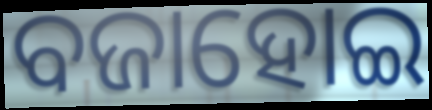
ବଜାହୋଇ